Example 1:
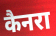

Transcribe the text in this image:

कैनरा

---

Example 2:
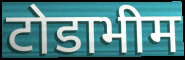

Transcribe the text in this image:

टोडाभीम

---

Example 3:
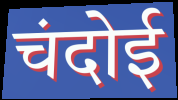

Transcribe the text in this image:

चंदोई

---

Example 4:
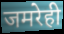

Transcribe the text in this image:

जमरेही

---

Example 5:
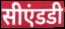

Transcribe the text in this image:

सीएंडडी